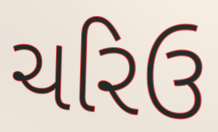
ચરિઉ